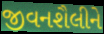
જીવનશૈલીને